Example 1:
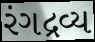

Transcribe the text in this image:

રંગદ્રવ્ય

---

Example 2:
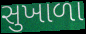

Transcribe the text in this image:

સુખાળા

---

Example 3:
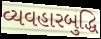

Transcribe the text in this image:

વ્યવહારબુદ્ધિ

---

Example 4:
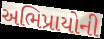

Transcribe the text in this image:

અભિપ્રાયોની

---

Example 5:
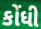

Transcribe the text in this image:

કોંધી